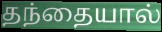
தந்தையால்